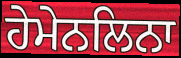
ਹੇਮੇਨਲਿਨਾ